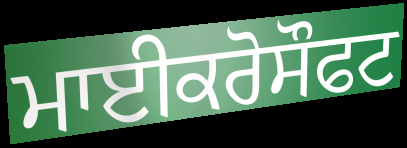
ਮਾਈਕਰੋਸੌਫਟ